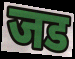
जड